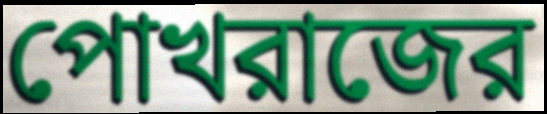
পোখরাজের